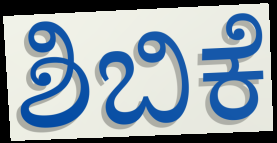
ಶಿಬಿಕೆ